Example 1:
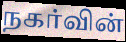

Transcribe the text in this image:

நகர்வின்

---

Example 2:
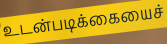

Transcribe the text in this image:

உடன்படிக்கையைச்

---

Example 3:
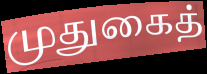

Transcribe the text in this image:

முதுகைத்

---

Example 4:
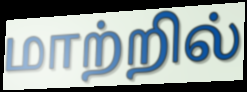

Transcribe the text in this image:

மாற்றில்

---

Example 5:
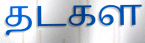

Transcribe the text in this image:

தடகள